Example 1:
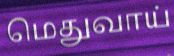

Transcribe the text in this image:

மெதுவாய்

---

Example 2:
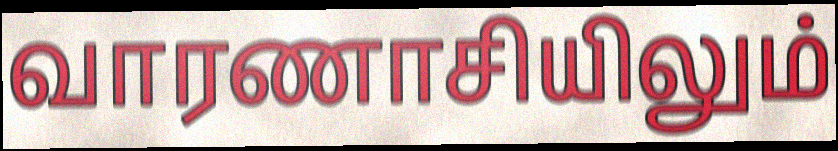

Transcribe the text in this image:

வாரணாசியிலும்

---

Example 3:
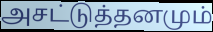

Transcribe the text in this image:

அசட்டுத்தனமும்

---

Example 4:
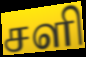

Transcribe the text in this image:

சளி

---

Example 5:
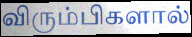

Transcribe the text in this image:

விரும்பிகளால்